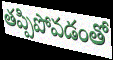
తప్పిపోవడంతో